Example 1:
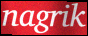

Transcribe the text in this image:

nagrik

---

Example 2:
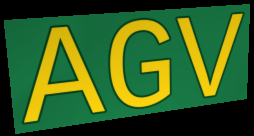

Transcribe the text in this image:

AGV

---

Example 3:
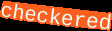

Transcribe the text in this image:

checkered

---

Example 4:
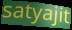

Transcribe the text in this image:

satyajit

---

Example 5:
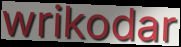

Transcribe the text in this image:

wrikodar